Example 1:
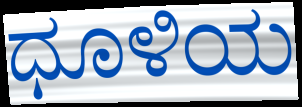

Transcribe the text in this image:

ಧೂಳಿಯ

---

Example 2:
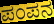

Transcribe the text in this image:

ಪಂಪನ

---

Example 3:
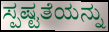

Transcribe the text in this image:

ಸ್ಪಷ್ಟತೆಯನ್ನು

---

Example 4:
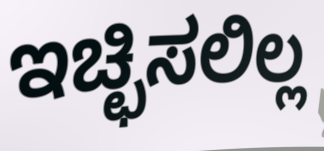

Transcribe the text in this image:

ಇಚ್ಛಿಸಲಿಲ್ಲ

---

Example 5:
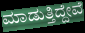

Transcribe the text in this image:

ಮಾಡುತ್ತಿದ್ದೇವೆ